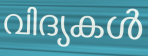
വിദ്യകൾ